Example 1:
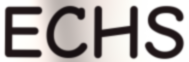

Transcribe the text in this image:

ECHS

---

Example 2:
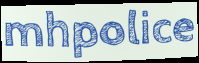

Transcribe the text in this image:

mhpolice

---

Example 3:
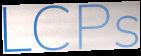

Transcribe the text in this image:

LCPs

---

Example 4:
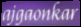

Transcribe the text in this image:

ajgaonkar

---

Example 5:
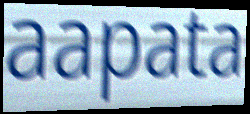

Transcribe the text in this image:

aapata